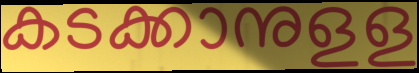
കടക്കാനുളള